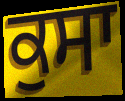
ਕੁਸਾ